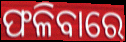
ଫଳିବାରେ